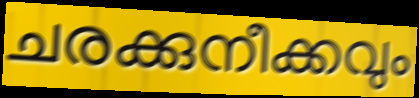
ചരക്കുനീക്കവും